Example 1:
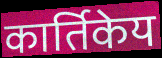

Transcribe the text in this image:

कार्तिकेय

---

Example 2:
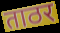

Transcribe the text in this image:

ताठर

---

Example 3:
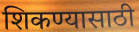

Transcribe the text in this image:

शिकण्यासाठी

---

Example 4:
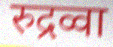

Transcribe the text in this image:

रुद्रव्वा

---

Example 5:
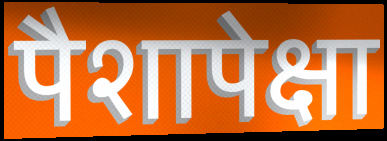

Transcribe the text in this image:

पैशापेक्षा